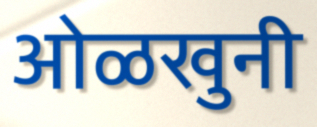
ओळखुनी